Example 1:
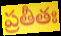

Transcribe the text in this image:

ప్రతీతః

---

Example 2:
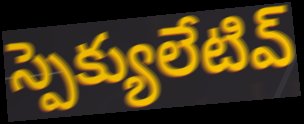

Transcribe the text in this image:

స్పెక్యులేటివ్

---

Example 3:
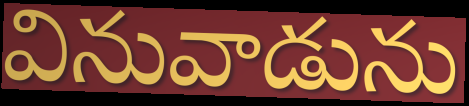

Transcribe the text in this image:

వినువాడును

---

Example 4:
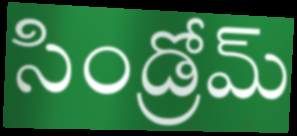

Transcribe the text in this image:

సిండ్రోమ్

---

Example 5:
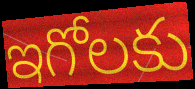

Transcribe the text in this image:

ఇగోలకు